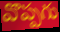
వొప్పగు